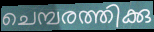
ചെമ്പരത്തിക്കു